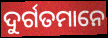
ଦୁର୍ଗତମାନେ